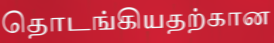
தொடங்கியதற்கான